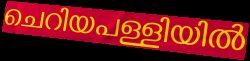
ചെറിയപള്ളിയിൽ